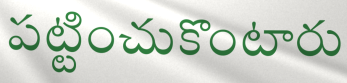
పట్టించుకొంటారు